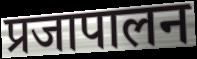
प्रजापालन